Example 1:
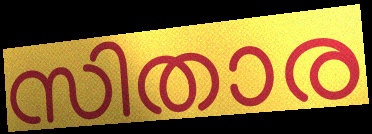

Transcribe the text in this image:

സിതാര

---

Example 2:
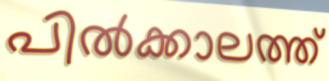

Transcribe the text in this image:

പിൽക്കാലത്ത്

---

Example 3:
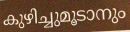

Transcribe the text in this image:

കുഴിച്ചുമൂടാനും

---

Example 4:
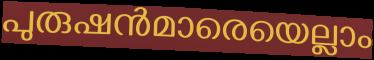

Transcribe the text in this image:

പുരുഷൻമാരെയെല്ലാം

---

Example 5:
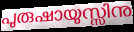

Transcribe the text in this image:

പുരുഷായുസ്സിനു